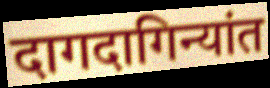
दागदागिन्यांत